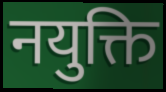
नयुक्ति